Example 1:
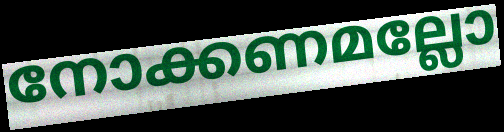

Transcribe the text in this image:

നോക്കണമല്ലോ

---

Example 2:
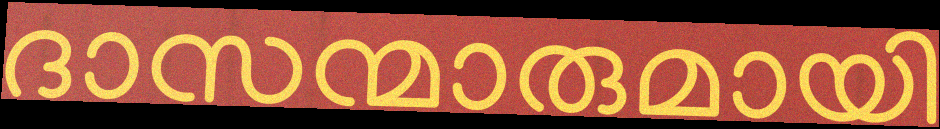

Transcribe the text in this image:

ദാസന്മാരുമായി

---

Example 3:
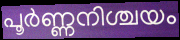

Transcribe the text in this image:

പൂർണ്ണനിശ്ചയം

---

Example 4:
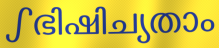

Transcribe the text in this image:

ഽഭിഷിച്യതാം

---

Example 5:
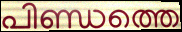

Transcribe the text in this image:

പിണ്ഡത്തെ